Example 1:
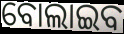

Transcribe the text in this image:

ବୋଲାଇବ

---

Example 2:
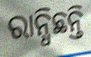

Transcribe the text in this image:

ରାନ୍ଧିଛନ୍ତି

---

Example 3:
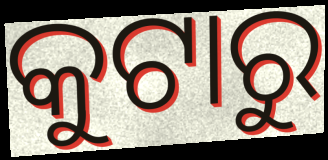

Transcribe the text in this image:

କୁଟାରୁ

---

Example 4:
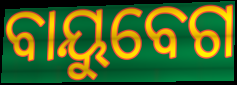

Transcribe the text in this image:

ବାୟୁବେଗ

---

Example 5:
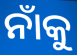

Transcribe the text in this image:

ନାଁକୁ